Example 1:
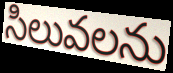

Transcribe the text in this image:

సిలువలను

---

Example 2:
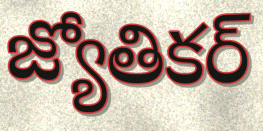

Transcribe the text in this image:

జ్యోతికర్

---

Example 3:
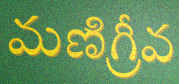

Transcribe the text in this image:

మణిగ్రీవ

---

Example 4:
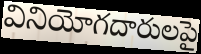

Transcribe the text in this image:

వినియోగదారులపై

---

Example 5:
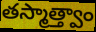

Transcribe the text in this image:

తస్మాత్త్వాం